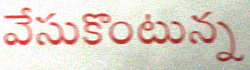
వేసుకొంటున్న